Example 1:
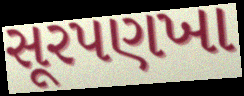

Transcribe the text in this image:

સૂરપણખા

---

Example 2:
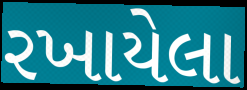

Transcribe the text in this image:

રખાયેલા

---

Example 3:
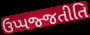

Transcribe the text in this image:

ઉપ્પજ્જતીતિ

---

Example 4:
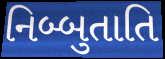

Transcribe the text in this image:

નિબ્બુતાતિ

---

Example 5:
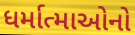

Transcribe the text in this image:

ધર્માત્માઓનો